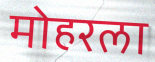
मोहरला